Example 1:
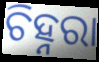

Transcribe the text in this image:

ଚିହ୍ନରା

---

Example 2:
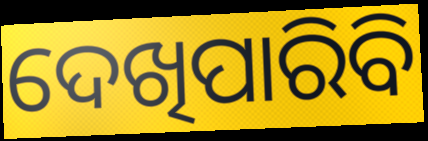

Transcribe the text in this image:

ଦେଖିପାରିବି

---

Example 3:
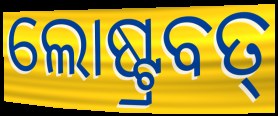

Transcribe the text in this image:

ଲୋଷ୍ଟ୍ରବତ୍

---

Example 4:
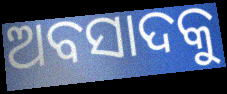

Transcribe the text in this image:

ଅବସାଦକୁ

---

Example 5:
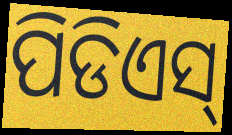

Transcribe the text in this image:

ପିଡିଏସ୍